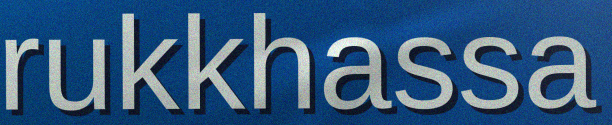
rukkhassa